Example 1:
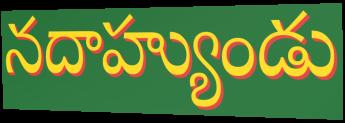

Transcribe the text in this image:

నదాహ్యుండు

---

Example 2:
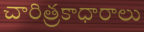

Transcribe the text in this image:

చారిత్రకాధారాలు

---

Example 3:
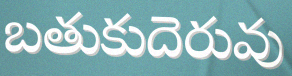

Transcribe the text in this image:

బతుకుదెరువు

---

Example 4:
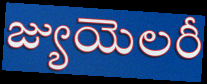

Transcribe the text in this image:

జ్యుయెలరీ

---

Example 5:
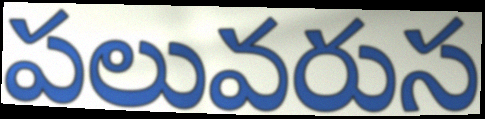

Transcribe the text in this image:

పలువరుస